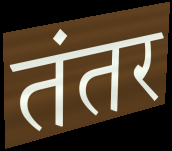
तंतर